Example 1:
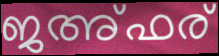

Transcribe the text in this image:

ജഅ്ഫര്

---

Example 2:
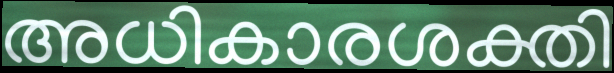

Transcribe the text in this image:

അധികാരശക്തി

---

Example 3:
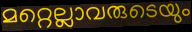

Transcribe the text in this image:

മറ്റെല്ലാവരുടെയും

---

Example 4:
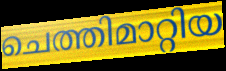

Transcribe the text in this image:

ചെത്തിമാറ്റിയ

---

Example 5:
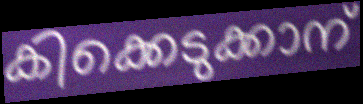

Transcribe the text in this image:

കിക്കെടുക്കാന്